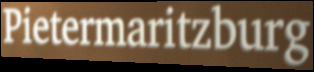
Pietermaritzburg